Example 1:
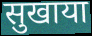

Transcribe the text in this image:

सुखाया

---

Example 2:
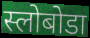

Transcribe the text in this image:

स्लोबोडा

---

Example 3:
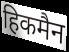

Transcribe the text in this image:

हिकमैन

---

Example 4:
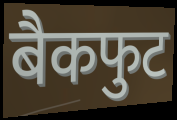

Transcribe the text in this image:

बैकफुट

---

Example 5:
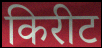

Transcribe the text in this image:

किरीट